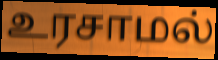
உரசாமல்